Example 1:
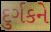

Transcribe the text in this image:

દુર્ગકને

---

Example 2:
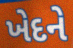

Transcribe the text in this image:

ખેદને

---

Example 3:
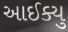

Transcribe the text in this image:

આઈક્યુ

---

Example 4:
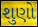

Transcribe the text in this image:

શુણો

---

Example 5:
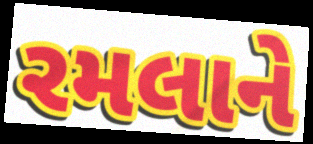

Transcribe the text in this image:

રમલાને